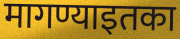
मागण्याइतका